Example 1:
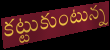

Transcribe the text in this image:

కట్టుకుంటున్న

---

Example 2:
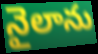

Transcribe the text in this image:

నైలాను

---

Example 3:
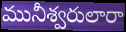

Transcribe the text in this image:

మునీశ్వరులారా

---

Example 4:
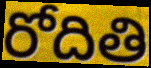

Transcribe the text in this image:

రోదితి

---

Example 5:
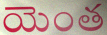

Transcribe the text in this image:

యెంత